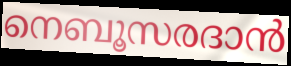
നെബൂസരദാൻ